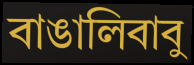
বাঙালিবাবু